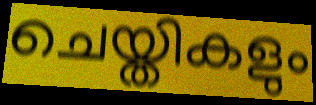
ചെയ്തികളും